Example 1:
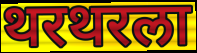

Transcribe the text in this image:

थरथरला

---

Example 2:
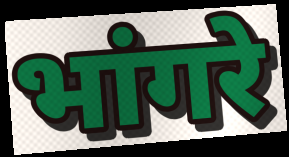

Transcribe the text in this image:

भांगरे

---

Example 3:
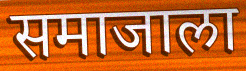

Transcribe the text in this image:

समाजाला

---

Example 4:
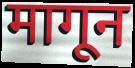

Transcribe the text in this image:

मागून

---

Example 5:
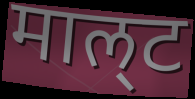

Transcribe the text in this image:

माल्ट